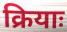
क्रियाः